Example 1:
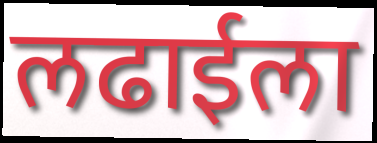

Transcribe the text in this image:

लढाईला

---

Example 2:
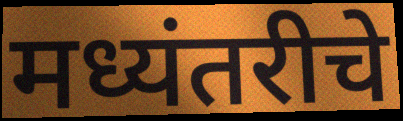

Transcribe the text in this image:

मध्यंतरीचे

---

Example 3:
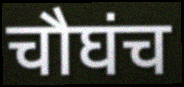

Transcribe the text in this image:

चौघंच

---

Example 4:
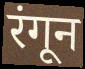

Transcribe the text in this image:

रंगून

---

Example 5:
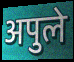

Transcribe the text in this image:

अपुले